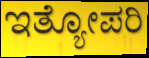
ಇತ್ಯೋಪರಿ